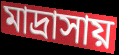
মাদ্রাসায়